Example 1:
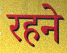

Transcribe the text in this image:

रहने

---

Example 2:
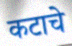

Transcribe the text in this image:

कटाचे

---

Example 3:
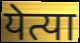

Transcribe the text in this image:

येत्या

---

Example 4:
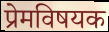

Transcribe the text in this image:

प्रेमविषयक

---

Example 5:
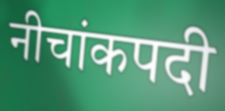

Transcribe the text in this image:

नीचांकपदी